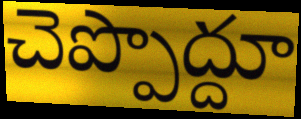
చెప్పొద్దూ